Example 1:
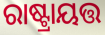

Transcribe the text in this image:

ରାଷ୍ଟ୍ରାୟତ୍ତ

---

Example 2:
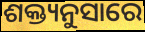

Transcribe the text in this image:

ଶକ୍ତ୍ୟନୁସାରେ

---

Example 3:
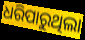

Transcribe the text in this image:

ଧରିପାରୁଥିଲା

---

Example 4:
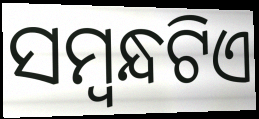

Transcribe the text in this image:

ସମ୍ୱନ୍ଧଟିଏ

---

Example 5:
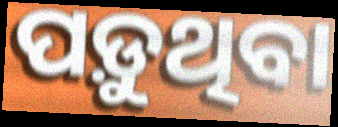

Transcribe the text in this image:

ପଡ଼ୁଥିବା